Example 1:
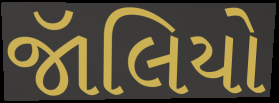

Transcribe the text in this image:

જૉલિયો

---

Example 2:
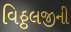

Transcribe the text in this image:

વિઠ્ઠલજીની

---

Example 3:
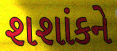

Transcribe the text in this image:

શશાંકને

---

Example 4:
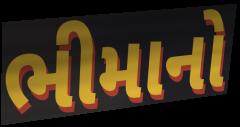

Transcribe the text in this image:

ભીમાનો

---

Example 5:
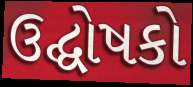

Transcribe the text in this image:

ઉદ્ઘોષકો